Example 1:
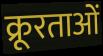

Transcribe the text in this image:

क्रूरताओं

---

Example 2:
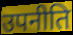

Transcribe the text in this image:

उपनीति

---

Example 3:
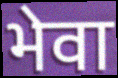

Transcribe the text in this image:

भेवा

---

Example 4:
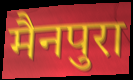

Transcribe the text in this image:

मैनपुरा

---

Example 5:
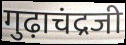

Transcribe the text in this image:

गुढ़ाचंद्रजी